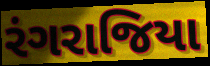
રંગરાજિયા